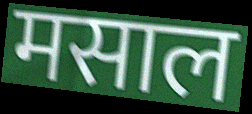
मसाल